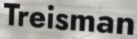
Treisman